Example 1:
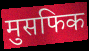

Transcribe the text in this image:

मुसफिक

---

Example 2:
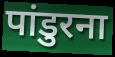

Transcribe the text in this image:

पांडुरना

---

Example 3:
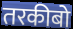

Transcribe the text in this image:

तरकीबो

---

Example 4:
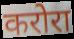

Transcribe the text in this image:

करोरा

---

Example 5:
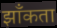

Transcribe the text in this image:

झाँकता